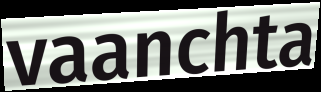
vaanchta